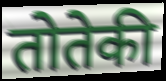
तोतेकी